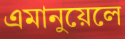
এমানুয়েলে